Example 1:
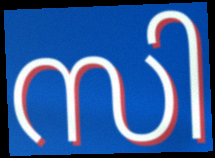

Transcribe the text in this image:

സി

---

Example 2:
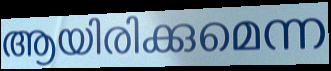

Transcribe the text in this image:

ആയിരിക്കുമെന്ന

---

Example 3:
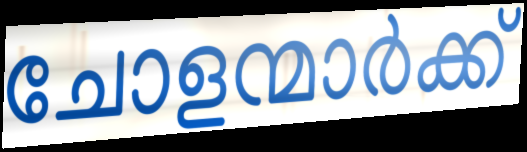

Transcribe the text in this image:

ചോളന്മാർക്ക്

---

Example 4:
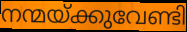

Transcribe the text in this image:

നന്മയ്ക്കുവേണ്ടി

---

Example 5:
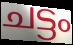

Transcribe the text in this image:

ചട്ടം